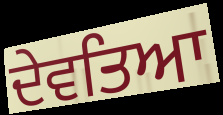
ਦੇਵਤਿਆ